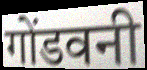
गोंडवनी